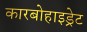
कारबोहाइड्रेट